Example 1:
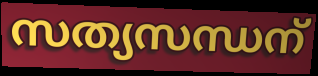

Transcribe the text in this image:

സത്യസന്ധന്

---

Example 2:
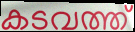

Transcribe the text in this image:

കടവത്ത്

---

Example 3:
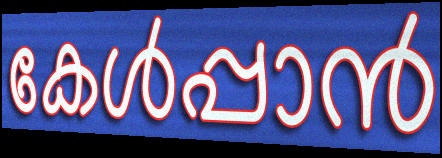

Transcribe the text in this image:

കേൾപ്പാൻ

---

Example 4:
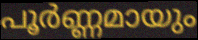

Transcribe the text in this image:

പൂർണ്ണമായും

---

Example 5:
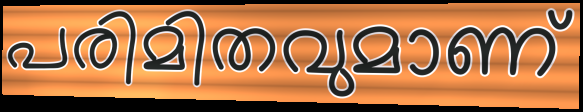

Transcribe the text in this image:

പരിമിതവുമാണ്